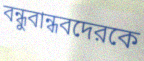
বন্ধুবান্ধবদেরকে